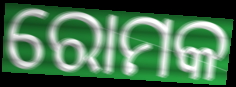
ରୋମକ